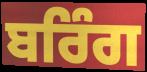
ਬਰਿੰਗ